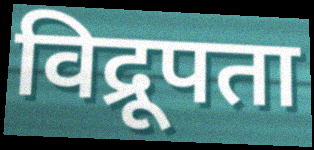
विद्रूपता